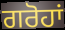
ਗਰੋਹਾਂ